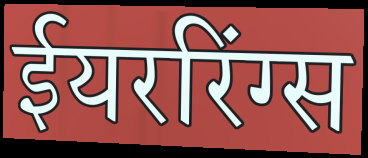
ईयररिंग्स